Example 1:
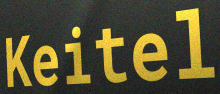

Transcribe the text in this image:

Keitel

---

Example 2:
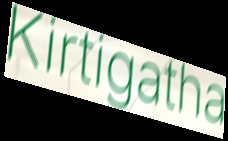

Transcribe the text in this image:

Kirtigatha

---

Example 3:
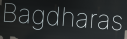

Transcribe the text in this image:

Bagdharas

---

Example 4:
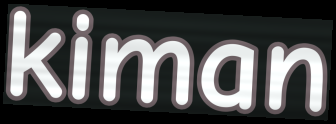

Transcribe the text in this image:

kiman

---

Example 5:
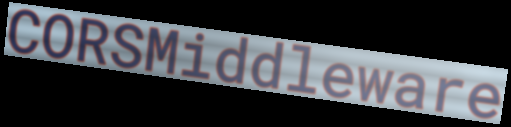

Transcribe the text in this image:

CORSMiddleware